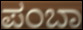
ಪಂಬಾ